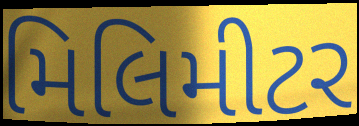
મિલિમીટર